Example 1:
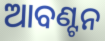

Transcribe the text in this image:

ଆବଣ୍ଟନ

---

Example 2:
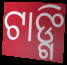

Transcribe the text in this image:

ଟାଙ୍ଗି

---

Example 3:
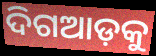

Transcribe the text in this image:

ଦିଗଆଡ଼କୁ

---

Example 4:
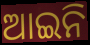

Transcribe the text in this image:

ଆଇନି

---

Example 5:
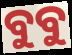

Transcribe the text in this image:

ବୁବୁ